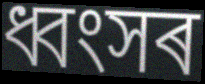
ধ্বংসৰ